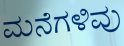
ಮನೆಗಳಿವು